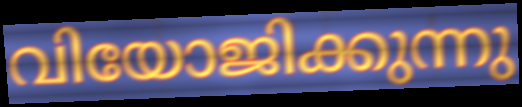
വിയോജിക്കുന്നു